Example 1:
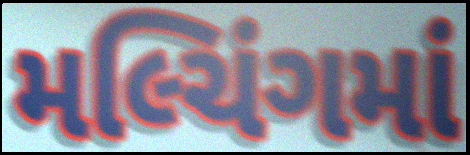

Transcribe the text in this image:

મલ્ચિંગમાં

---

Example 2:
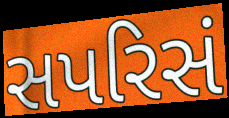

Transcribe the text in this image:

સપરિસં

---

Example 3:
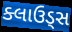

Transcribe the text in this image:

ક્લાઉડ્સ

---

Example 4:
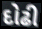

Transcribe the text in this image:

દોઢી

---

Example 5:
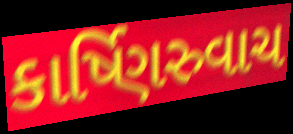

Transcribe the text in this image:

કાર્ષ્ણિરુવાચ